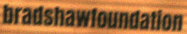
bradshawfoundation